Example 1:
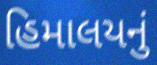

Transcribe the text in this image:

હિમાલયનું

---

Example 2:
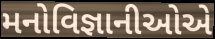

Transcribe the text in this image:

મનોવિજ્ઞાનીઓએ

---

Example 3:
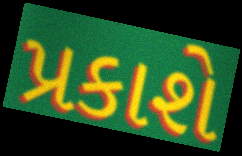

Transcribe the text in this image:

પ્રકાશે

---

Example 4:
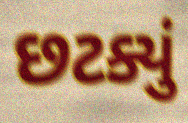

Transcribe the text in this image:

છટક્યું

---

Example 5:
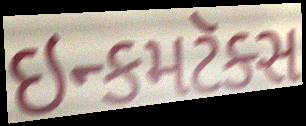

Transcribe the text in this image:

ઇન્કમટૅક્સ